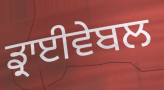
ਡ੍ਰਾਈਵੇਬਲ